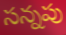
సన్నపు